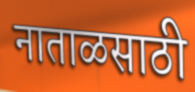
नाताळसाठी